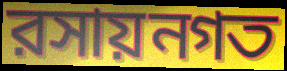
রসায়নগত